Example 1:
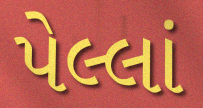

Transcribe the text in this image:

પેલ્લાં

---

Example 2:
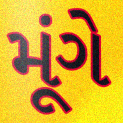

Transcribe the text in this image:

મૂંગે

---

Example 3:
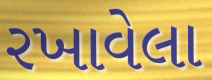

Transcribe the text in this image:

રખાવેલા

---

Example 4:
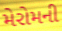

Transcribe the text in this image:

મેરોમની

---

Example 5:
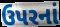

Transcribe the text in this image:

ઉપરનાં